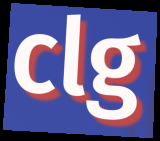
clg